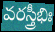
వరస్త్రీభిః